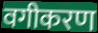
वगीकरण